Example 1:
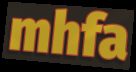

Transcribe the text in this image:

mhfa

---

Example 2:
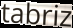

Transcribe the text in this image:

tabriz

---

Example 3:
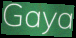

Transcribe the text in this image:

Gaya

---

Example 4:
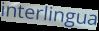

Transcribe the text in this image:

interlingua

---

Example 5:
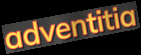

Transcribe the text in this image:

adventitia